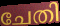
ചേതി